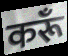
करूँ